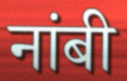
नांबी